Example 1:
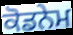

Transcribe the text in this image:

ਕੋਡਨੇਮ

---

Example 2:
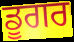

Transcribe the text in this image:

ਡੂਗਰ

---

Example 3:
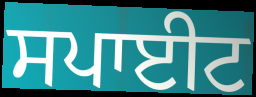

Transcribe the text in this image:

ਸਪਾਈਟ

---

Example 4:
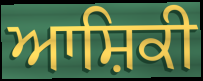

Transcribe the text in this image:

ਆਸ਼ਿਕੀ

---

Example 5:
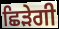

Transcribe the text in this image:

ਛਿੜੇਗੀ